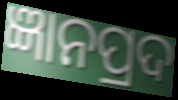
ଜ୍ଞାନପ୍ରଦ